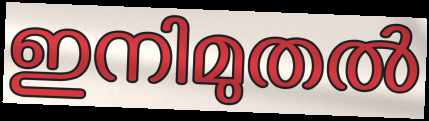
ഇനിമുതൽ